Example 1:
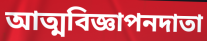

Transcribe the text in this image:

আত্মবিজ্ঞাপনদাতা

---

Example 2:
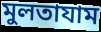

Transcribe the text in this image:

মুলতাযাম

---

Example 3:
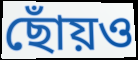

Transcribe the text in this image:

ছোঁয়ও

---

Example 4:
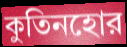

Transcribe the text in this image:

কুতিনহোর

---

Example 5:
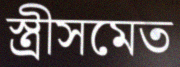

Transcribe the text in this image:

স্ত্রীসমেত